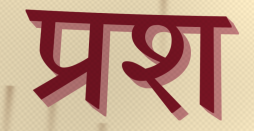
प्रश